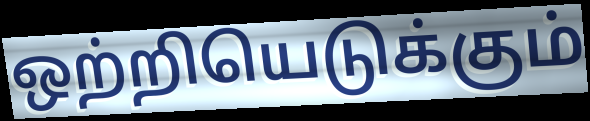
ஒற்றியெடுக்கும்